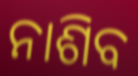
ନାଶିବ